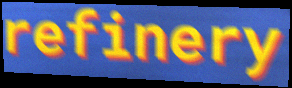
refinery